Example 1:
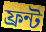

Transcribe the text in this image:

ফ্রন্ট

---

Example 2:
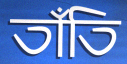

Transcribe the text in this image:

তাঁতি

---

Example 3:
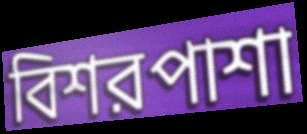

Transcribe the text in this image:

বিশরপাশা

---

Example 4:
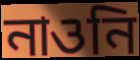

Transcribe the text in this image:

নাওনি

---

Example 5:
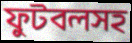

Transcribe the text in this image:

ফুটবলসহ